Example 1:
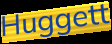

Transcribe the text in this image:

Huggett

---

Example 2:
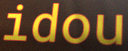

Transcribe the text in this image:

idou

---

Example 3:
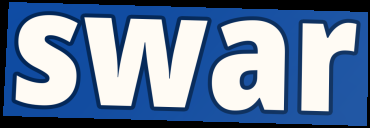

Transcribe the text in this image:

swar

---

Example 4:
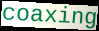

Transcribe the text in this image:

coaxing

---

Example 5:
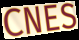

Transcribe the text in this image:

CNES